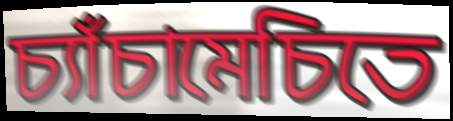
চ্যাঁচামেচিতে